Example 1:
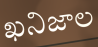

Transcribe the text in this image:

ఖనిజాల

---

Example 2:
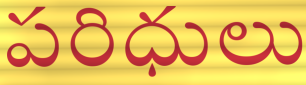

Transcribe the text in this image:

పరిధులు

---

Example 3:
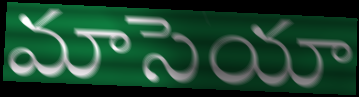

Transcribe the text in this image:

మాసెయా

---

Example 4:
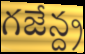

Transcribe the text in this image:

గజేన్ద్ర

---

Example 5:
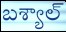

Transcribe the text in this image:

బశ్యాల్